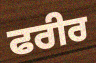
ਫਰੀਰ